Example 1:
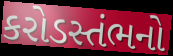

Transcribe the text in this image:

કરોડસ્તંભનો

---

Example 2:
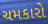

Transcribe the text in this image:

ચમકારો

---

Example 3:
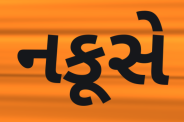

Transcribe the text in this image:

નકૂસે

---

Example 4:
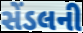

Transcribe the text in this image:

સેંડલની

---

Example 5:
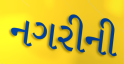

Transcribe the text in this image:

નગરીની